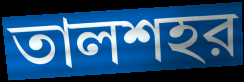
তালশহর